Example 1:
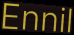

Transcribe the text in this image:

Ennil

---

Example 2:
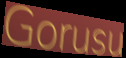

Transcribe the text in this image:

Gorusu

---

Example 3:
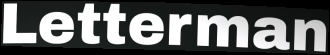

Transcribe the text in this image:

Letterman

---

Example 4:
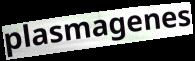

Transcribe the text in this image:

plasmagenes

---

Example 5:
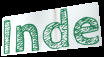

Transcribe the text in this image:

Inde